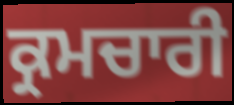
ਕ੍ਰਮਚਾਰੀ